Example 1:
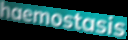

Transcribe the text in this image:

haemostasis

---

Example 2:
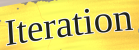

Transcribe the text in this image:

Iteration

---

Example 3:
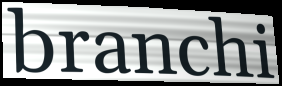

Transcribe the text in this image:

branchi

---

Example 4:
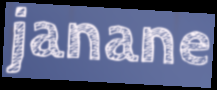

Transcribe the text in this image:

janane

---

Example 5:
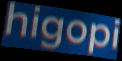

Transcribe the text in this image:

higopi